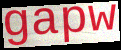
gapw